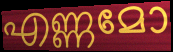
എണ്ണമോ